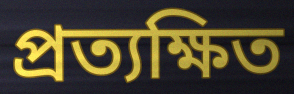
প্রত্যক্ষিত